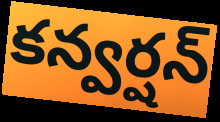
కన్వర్షన్